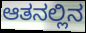
ಆತನಲ್ಲಿನ